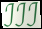
JJJ